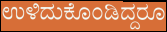
ಉಳಿದುಕೊಂಡಿದ್ದರೂ